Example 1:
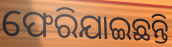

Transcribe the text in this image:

ଫେରିଯାଇଛନ୍ତି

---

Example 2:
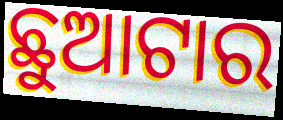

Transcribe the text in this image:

ଛୁଆଟାର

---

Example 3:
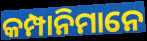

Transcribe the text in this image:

କମ୍ପାନିମାନେ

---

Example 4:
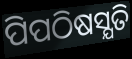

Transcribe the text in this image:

ପିପଠିଷସ୍ଯତି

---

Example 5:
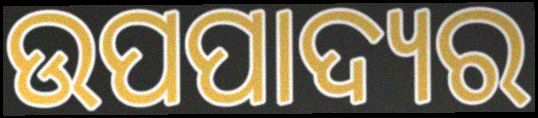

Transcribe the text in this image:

ଉପପାଦ୍ୟର